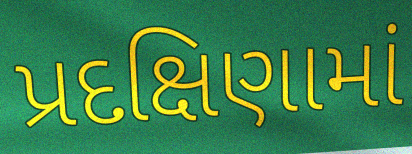
પ્રદક્ષિણામાં